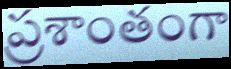
ప్రశాంతంగా